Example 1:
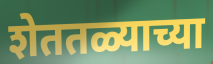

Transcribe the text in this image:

शेततळ्याच्या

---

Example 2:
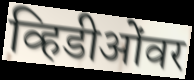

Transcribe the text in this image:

व्हिडीओंवर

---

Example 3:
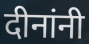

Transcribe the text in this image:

दीनांनी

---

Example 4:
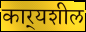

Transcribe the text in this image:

कार्यशील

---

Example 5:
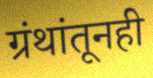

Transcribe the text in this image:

ग्रंथांतूनही